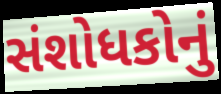
સંશોધકોનું